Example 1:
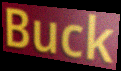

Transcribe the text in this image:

Buck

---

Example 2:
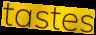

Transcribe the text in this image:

tastes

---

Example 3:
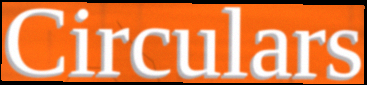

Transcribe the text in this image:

Circulars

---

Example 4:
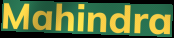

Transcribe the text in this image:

Mahindra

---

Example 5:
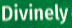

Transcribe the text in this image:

Divinely